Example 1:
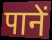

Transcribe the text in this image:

पानें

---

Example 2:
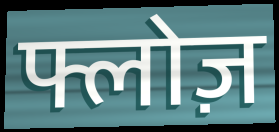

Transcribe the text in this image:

फ्लोज़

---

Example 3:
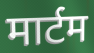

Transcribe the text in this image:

मार्टम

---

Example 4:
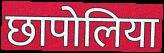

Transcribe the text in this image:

छापोलिया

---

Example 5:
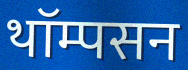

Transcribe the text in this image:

थॉम्पसन